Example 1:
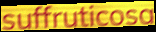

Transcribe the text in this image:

suffruticosa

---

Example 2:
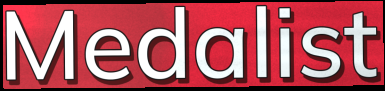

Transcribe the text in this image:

Medalist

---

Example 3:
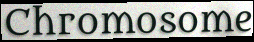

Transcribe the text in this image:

Chromosome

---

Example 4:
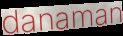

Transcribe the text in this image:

danaman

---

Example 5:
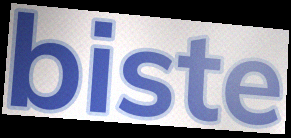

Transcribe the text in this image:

biste